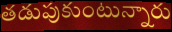
తడుపుకుంటున్నారు